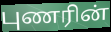
புணரின்